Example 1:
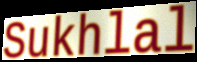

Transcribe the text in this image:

Sukhlal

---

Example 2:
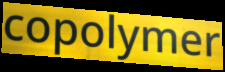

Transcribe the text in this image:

copolymer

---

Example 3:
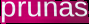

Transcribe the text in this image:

prunas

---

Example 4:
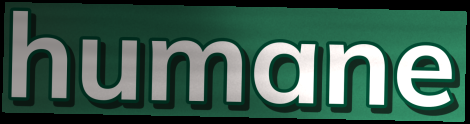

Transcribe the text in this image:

humane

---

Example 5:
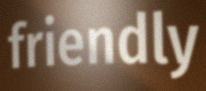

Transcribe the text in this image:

friendly